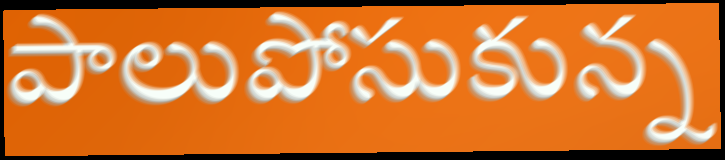
పాలుపోసుకున్న